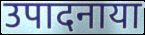
उपादनाया